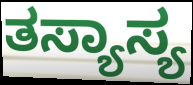
ತಸ್ಯಾಸ್ಯ